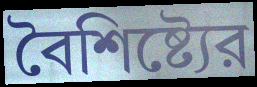
বৈশিষ্ট্যের